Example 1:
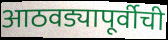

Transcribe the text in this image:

आठवड्यापूर्वीची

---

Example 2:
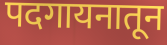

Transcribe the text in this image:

पदगायनातून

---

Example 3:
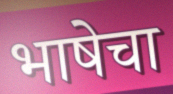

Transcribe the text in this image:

भाषेचा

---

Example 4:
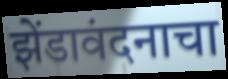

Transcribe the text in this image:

झेंडावंदनाचा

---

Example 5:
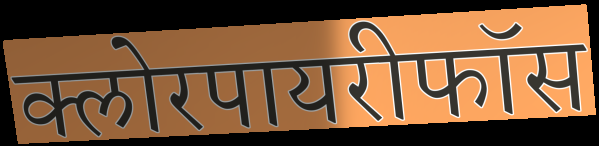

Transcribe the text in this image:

क्लोरपायरीफॉस